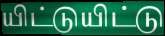
யிட்டுயிட்டு